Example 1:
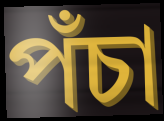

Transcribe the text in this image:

পঁচা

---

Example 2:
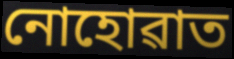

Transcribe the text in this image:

নোহোৱাত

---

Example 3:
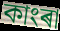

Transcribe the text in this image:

কাংৰা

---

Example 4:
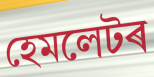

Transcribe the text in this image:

হেমলেটৰ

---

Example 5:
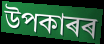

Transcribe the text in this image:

উপকাৰৰ